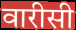
वारीसी